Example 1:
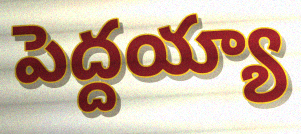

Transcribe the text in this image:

పెద్దయ్యా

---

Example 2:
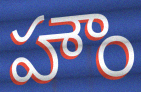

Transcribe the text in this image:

హౌం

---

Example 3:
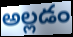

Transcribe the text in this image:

అల్లడం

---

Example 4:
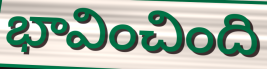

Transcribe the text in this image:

భావించింది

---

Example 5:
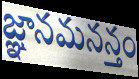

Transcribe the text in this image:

జ్ఞానమనన్తం